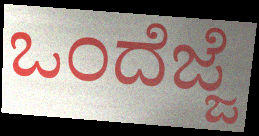
ಒಂದೆಜ್ಜೆ